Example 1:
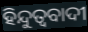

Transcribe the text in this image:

ହିନ୍ଦୁତ୍ୱବାଦୀ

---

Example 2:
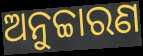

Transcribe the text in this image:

ଅନୁଚ୍ଚାରଣ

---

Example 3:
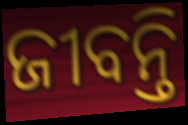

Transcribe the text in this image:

ଜୀବନ୍ତି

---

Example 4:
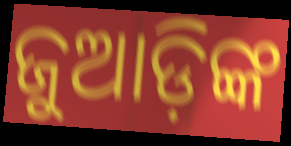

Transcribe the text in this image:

ଜୁଆଡ଼ିଙ୍କ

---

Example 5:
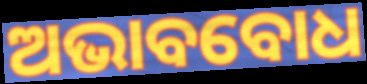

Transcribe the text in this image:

ଅଭାବବୋଧ